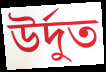
উৰ্দুত